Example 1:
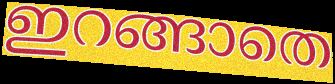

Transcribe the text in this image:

ഇറങ്ങാതെ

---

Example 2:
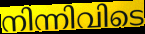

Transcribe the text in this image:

നിന്നിവിടെ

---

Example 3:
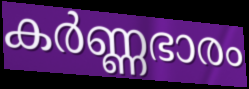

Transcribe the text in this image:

കർണ്ണഭാരം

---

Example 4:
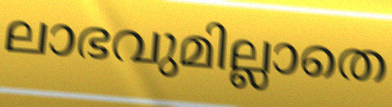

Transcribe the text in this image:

ലാഭവുമില്ലാതെ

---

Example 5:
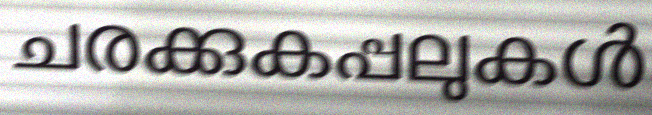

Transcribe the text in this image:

ചരക്കുകപ്പലുകൾ